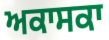
ਅਕਾਸਕਾ